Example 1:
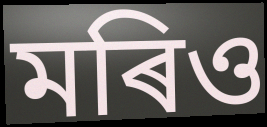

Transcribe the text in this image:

মৰিও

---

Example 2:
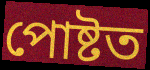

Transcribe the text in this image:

পোষ্টত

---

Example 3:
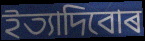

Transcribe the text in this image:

ইত্যাদিবোৰ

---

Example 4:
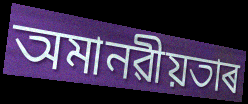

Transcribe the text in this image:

অমানৱীয়তাৰ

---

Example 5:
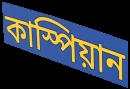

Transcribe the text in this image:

কাস্পিয়ান